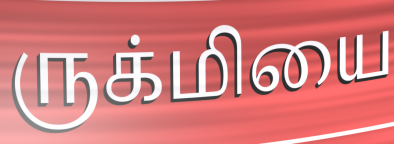
ருக்மியை